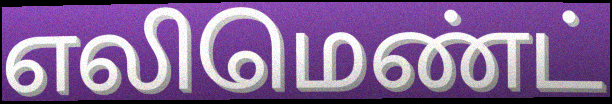
எலிமெண்ட்